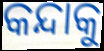
କନ୍ଦାକୁ